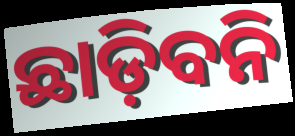
ଛାଡ଼ିବନି